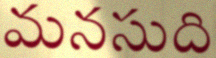
మనసుది